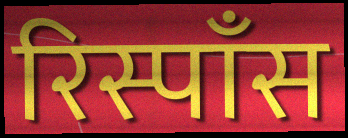
रिस्पॉंस